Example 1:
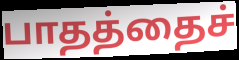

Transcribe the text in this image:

பாதத்தைச்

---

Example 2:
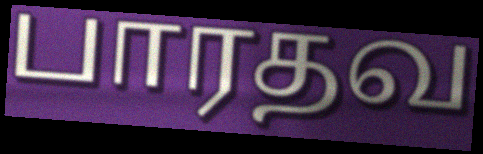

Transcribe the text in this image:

பாரதவ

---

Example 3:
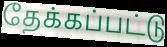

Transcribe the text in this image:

தேக்கப்பட்டு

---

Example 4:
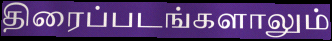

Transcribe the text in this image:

திரைப்படங்களாலும்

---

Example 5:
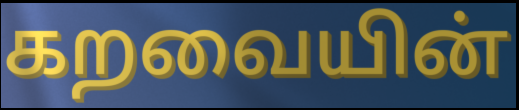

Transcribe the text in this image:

கறவையின்